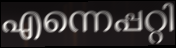
എന്നെപ്പറ്റി